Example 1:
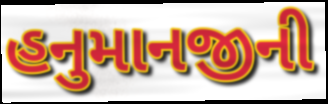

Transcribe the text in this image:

હનુમાનજીની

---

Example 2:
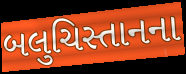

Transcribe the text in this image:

બલુચિસ્તાનના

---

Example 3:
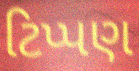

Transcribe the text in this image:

ટિપ્પણ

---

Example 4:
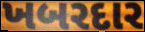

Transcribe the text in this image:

ખબરદાર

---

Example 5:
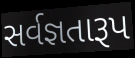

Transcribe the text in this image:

સર્વજ્ઞતારૂપ